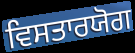
ਵਿਸਤਾਰਯੋਗ